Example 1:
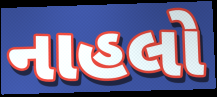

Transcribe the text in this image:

નાહલો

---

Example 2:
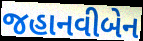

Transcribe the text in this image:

જહાનવીબેન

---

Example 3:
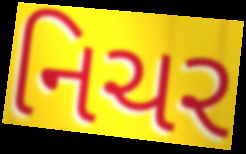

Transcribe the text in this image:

નિચર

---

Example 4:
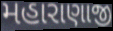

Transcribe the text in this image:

મહારાણાજી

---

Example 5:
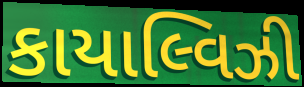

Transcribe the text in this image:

કાયાલ્વિઝી